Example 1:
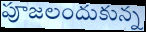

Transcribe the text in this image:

పూజలందుకున్న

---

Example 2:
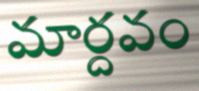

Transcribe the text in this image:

మార్దవం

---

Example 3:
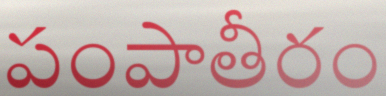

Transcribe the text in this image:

పంపాతీరం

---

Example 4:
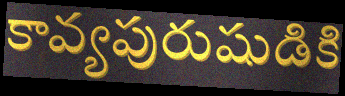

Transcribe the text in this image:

కావ్యపురుషుడికి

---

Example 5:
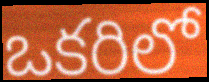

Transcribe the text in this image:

ఒకరిలో